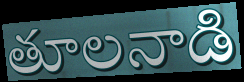
తూలనాడి